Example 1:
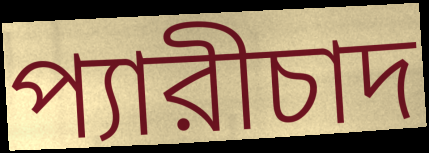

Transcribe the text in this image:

প্যারীচাদ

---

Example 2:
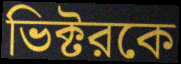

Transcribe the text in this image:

ভিক্টরকে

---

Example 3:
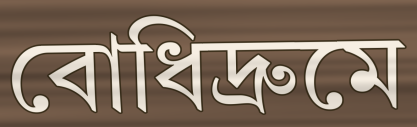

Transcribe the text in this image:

বোধিদ্রুমে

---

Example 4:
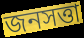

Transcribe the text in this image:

জনসত্তা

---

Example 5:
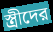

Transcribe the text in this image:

স্ত্রীদের